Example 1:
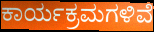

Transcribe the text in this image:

ಕಾರ್ಯಕ್ರಮಗಳಿವೆ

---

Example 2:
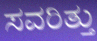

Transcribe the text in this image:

ಸವರಿತ್ತು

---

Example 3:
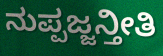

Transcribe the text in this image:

ನುಪ್ಪಜ್ಜನ್ತೀತಿ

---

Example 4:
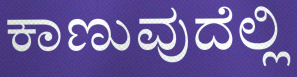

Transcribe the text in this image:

ಕಾಣುವುದೆಲ್ಲಿ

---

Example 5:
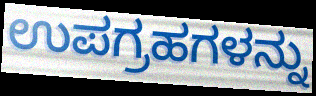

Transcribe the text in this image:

ಉಪಗ್ರಹಗಳನ್ನು